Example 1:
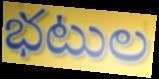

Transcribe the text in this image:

భటుల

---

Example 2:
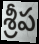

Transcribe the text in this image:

శ్రీప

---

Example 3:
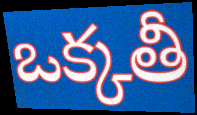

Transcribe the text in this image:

ఒక్కతీ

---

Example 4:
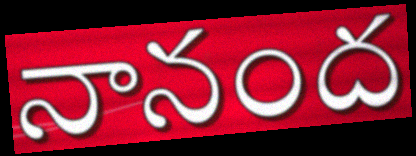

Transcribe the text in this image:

నానంద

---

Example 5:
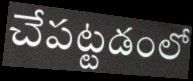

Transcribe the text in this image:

చేపట్టడంలో